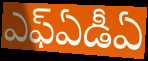
ఎఫ్ఏడీఏ